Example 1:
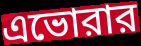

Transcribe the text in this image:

এভোরার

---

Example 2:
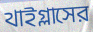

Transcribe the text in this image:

থাইগ্লাসের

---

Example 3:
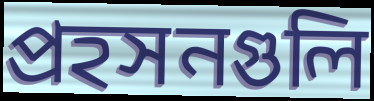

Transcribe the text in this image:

প্রহসনগুলি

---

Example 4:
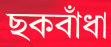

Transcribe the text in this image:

ছকবাঁধা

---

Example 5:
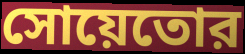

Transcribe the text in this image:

সোয়েতোর